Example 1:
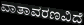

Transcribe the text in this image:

ವಾತಾವರಣವಿದೆ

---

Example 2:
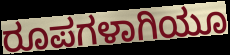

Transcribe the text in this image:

ರೂಪಗಳಾಗಿಯೂ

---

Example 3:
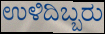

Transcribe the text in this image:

ಉಳಿದಿಬ್ಬರು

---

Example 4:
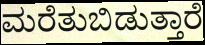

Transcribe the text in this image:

ಮರೆತುಬಿಡುತ್ತಾರೆ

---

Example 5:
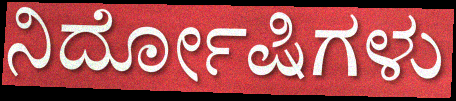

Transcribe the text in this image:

ನಿರ್ದೋಷಿಗಳು